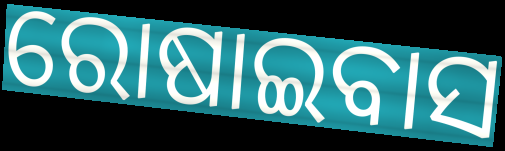
ରୋଷାଇବାସ